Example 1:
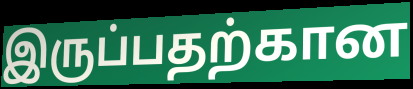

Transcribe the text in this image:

இருப்பதற்கான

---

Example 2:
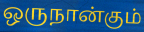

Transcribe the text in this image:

ஒருநான்கும்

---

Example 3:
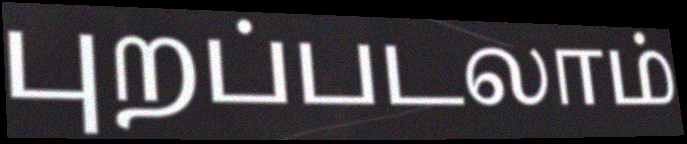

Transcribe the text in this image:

புறப்படலாம்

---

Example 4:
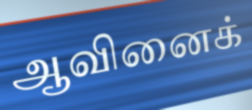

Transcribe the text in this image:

ஆவினைக்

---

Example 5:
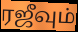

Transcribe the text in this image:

ரஜீவும்